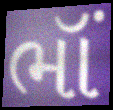
ભૉં